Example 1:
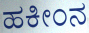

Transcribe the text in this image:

ಹಕೀಂನ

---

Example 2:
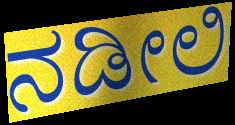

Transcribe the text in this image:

ನಡೀಲಿ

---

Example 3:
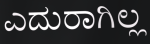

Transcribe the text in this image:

ಎದುರಾಗಿಲ್ಲ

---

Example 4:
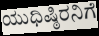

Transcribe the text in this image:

ಯುಧಿಷ್ಠಿರನಿಗೆ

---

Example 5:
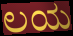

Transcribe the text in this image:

ಲಯ